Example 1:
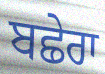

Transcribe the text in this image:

ਬਛੇਰਾ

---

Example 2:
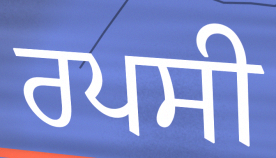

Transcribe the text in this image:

ਰਪਸੀ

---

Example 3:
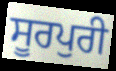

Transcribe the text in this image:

ਸੂਰਪੁਰੀ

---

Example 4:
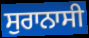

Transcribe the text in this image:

ਸੁਰਾਨਾਸੀ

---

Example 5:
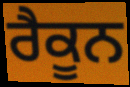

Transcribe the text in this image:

ਰੈਕੂਨ